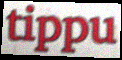
tippu